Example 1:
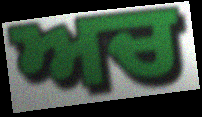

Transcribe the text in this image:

ਅਚ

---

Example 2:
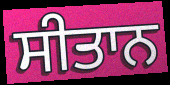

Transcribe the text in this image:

ਸੀਤਾਨ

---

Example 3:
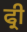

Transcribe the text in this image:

ਫ੍ਰੀ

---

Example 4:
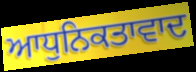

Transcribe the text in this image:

ਆਧੁਨਿਕਤਾਵਾਦ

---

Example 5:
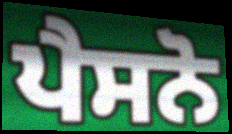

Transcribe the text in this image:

ਪੈਸਨੋ